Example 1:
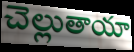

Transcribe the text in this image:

చెల్లుతాయా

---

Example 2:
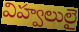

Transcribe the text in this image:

విహ్వలులై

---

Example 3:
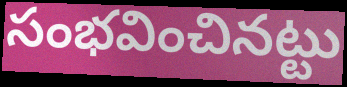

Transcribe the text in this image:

సంభవించినట్టు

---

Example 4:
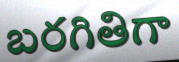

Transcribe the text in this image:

బరగితిగా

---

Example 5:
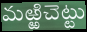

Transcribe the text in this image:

మఱ్ఱిచెట్టు